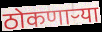
ठोकणाऱ्या